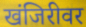
खंजिरीवर